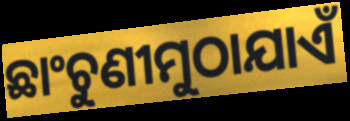
ଛାଂଚୁଣୀମୁଠାଯାଏଁ